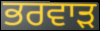
ਭਰਵਾੜ